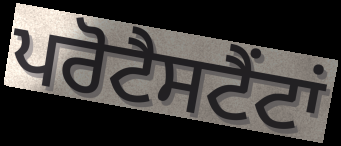
ਪਰੋਟੈਸਟੈਂਟਾਂ